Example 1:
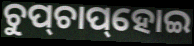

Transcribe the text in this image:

ଚୁପ୍‌ଚାପ୍‌ହୋଇ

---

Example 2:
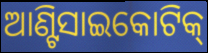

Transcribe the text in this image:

ଆଣ୍ଟିସାଇକୋଟିକ୍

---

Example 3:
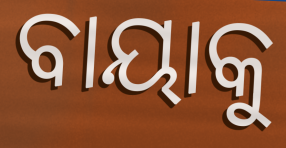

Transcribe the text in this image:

ବାୟାକୁ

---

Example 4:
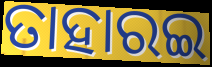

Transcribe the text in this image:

ତାହାରଇ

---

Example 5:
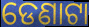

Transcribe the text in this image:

ଡେଣାଟା